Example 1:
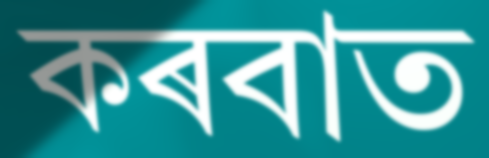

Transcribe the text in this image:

কৰবাত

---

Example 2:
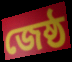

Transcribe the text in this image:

জেষ্ঠ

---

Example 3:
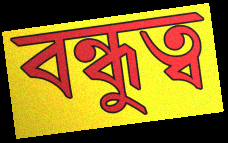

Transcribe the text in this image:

বন্ধুত্ব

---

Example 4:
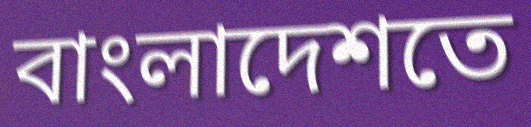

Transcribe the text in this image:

বাংলাদেশতে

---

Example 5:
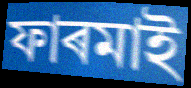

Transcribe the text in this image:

ফাৰমাই